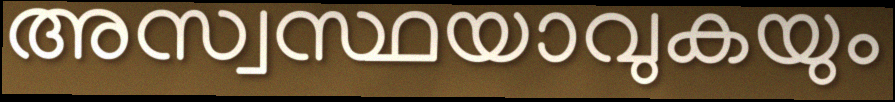
അസ്വസ്ഥയാവുകയും